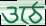
ওঠে